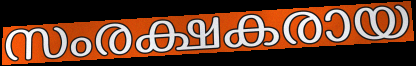
സംരക്ഷകരായ